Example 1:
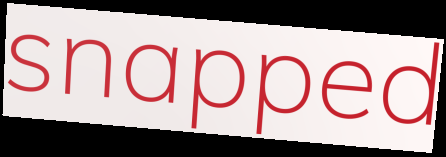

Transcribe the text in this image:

snapped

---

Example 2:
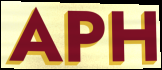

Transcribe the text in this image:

APH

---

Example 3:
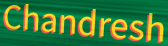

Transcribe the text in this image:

Chandresh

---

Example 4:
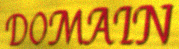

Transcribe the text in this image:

DOMAIN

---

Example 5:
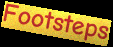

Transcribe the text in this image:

Footsteps